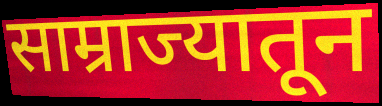
साम्राज्यातून